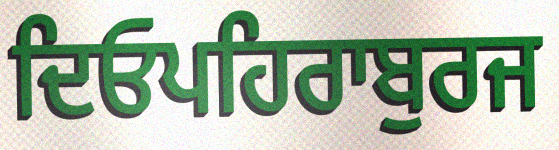
ਦਿਓਪਹਿਰਾਬੁਰਜ